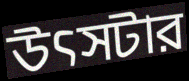
উৎসটার